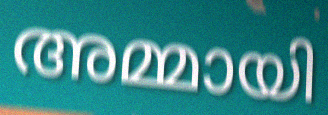
അമ്മായി